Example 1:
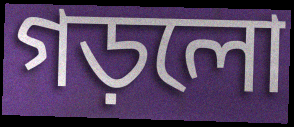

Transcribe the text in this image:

গড়লো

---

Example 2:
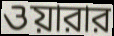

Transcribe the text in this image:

ওয়ারার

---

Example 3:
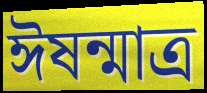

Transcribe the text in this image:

ঈষন্মাত্র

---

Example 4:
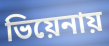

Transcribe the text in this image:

ভিয়েনায়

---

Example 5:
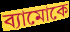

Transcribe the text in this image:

ব্যামোকে